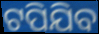
ଟପିଯିବ